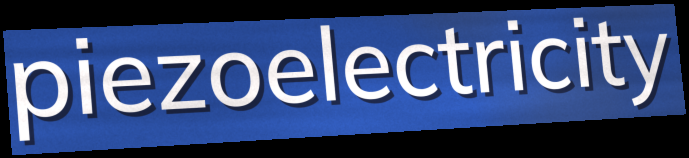
piezoelectricity